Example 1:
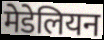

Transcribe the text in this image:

मेडेलियन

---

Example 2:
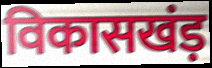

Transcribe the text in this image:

विकासखंड़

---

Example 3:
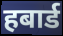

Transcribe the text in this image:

हबार्ड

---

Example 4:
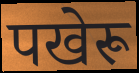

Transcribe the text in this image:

पखेरू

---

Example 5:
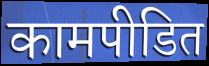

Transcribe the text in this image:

कामपीडित